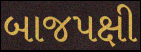
બાજપક્ષી